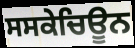
ਸਸਕੇਚਿਊਨ